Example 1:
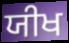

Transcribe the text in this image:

ਯੀਖ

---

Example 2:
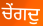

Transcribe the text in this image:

ਚੇਂਗਦੁ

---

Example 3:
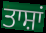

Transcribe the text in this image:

ਤਾਸ਼ਾਂ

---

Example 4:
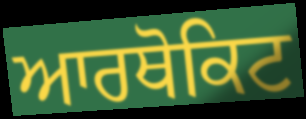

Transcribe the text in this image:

ਆਰਥੋਕਿਟ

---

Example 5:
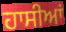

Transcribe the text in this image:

ਹਾਸੀਆਂ